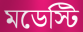
মডেস্টি